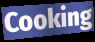
Cooking